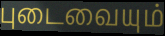
புடைவையும்